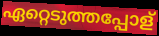
ഏറ്റെടുത്തപ്പോള്